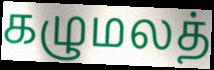
கழுமலத்